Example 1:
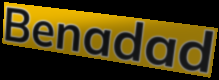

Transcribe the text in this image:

Benadad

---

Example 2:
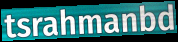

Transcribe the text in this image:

tsrahmanbd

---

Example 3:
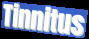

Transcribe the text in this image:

Tinnitus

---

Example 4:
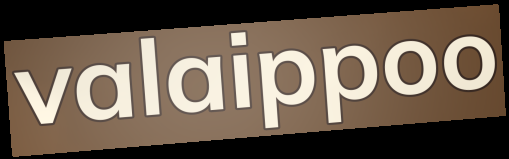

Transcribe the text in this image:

valaippoo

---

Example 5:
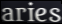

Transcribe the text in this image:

aries